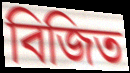
বিজিত